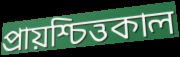
প্রায়শ্চিত্তকাল